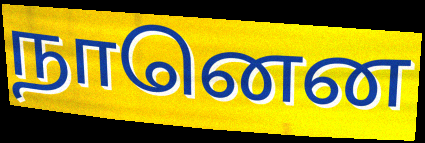
நானென